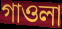
গাওলা